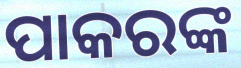
ପାକରଙ୍କ